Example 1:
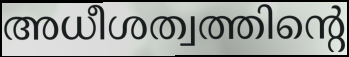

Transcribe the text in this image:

അധീശത്വത്തിന്റെ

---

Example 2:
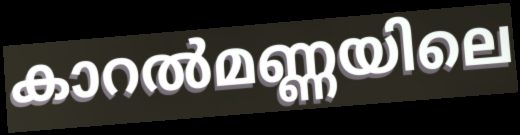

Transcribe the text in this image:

കാറൽമണ്ണയിലെ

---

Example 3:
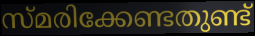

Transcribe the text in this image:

സ്മരിക്കേണ്ടതുണ്ട്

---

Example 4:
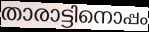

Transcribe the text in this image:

താരാട്ടിനൊപ്പം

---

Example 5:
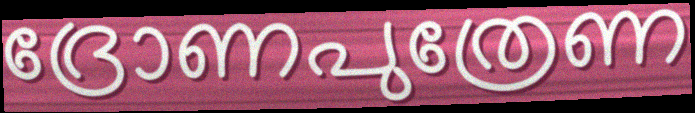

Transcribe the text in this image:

ദ്രോണപുത്രേണ